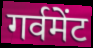
गर्वमेंट